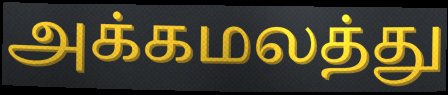
அக்கமலத்து